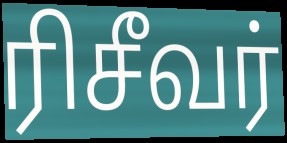
ரிசீவர்